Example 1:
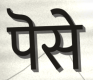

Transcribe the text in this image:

पॆसे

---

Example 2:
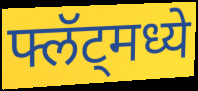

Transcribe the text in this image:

फ्लॅट्मध्ये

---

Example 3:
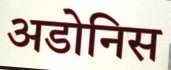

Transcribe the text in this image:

अडोनिस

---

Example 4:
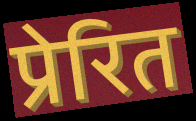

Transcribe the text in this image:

प्रेरित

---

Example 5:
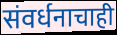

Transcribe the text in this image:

संवर्धनाचाही